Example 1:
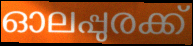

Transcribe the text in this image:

ഓലപ്പുരക്ക്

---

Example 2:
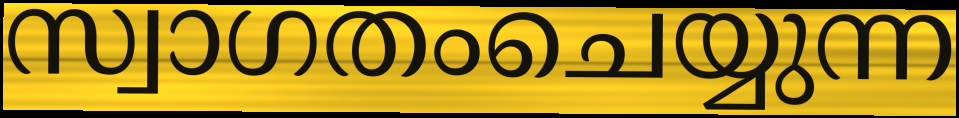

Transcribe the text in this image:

സ്വാഗതംചെയ്യുന്ന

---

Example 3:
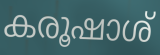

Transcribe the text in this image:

കരൂഷാശ്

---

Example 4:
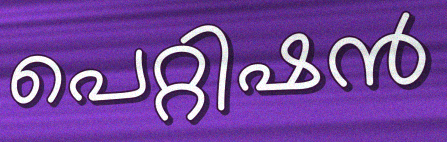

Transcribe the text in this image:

പെറ്റിഷൻ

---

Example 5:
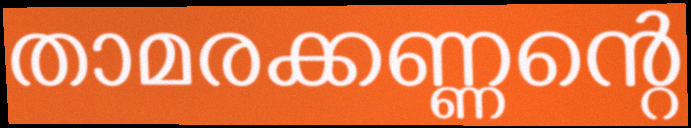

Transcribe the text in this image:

താമരക്കണ്ണന്റെ